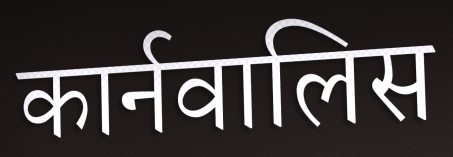
कार्नवालिस